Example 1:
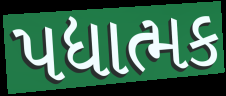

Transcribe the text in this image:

પદ્યાત્મક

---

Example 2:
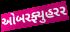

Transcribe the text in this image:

ઓબરફ્યુહરર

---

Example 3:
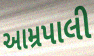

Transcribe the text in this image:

આમ્રપાલી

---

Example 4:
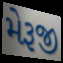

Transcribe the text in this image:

મેરૂજી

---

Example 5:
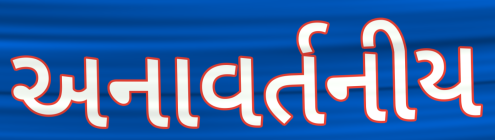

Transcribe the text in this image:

અનાવર્તનીય